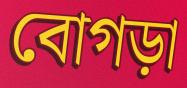
বোগড়া